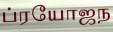
ப்ரயோஜந